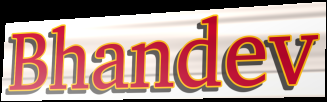
Bhandev